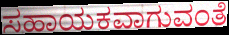
ಸಹಾಯಕವಾಗುವಂತೆ